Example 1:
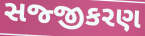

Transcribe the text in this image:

સજ્જીકરણ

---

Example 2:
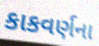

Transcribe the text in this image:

કાકવર્ણના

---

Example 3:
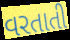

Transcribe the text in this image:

વરતાતી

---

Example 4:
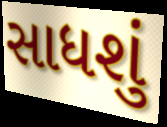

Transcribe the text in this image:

સાધશું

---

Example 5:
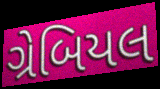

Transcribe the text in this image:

ગ્રેબિયલ